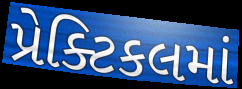
પ્રેક્ટિકલમાં